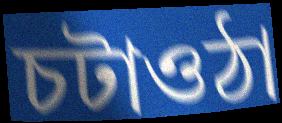
চটাওঠা